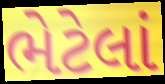
ભેટેલાં